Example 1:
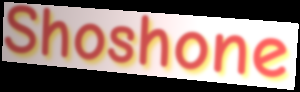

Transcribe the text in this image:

Shoshone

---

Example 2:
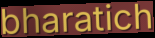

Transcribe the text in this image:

bharatich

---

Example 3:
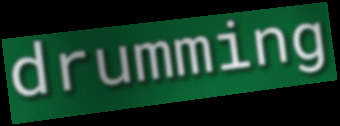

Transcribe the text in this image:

drumming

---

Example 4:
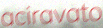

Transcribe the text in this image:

aciravato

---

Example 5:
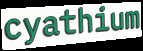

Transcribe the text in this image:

cyathium